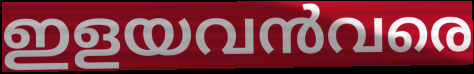
ഇളയവൻവരെ